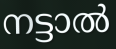
നട്ടാൽ